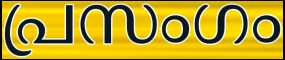
പ്രസംഗം